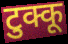
टुक्कू